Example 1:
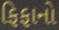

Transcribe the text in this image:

ફિફાનો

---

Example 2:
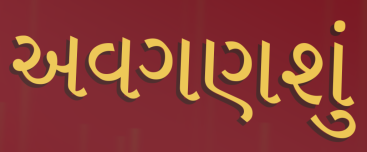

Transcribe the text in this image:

અવગણશું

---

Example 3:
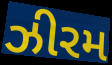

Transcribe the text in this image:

ઝીરમ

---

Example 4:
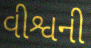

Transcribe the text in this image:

વીશ્વની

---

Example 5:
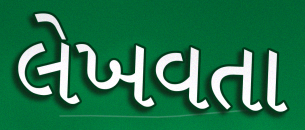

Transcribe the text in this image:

લેખવતા